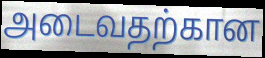
அடைவதற்கான